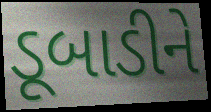
ડૂબાડીને